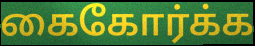
கைகோர்க்க